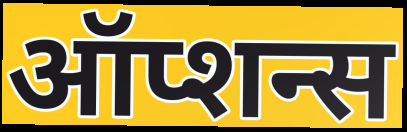
ऑप्शन्स